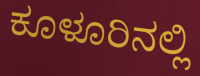
ಕೂಳೂರಿನಲ್ಲಿ